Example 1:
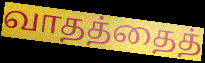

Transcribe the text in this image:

வாதத்தைத்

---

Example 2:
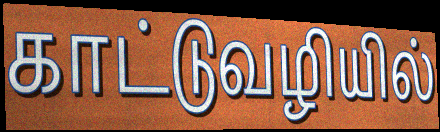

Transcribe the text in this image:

காட்டுவழியில்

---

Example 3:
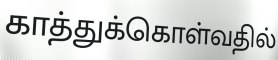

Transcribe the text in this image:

காத்துக்கொள்வதில்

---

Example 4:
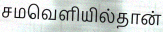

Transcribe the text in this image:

சமவெளியில்தான்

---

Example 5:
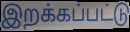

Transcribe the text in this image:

இறக்கப்பட்டு